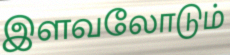
இளவலோடும்